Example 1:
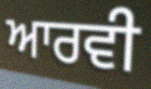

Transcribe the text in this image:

ਆਰਵੀ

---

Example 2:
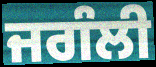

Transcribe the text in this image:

ਜਗੰਲੀ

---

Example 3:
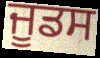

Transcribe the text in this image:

ਜੂਡਸ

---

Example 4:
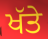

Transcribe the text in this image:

ਖੱਤੇ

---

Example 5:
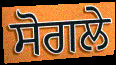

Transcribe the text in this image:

ਸੋਗਲੇ